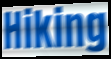
Hiking